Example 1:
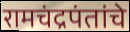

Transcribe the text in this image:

रामचंद्रपंतांचे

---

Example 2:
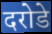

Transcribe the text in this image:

दरोडे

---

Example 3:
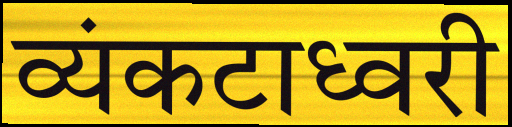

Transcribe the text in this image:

व्यंकटाध्वरी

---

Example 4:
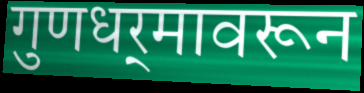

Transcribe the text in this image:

गुणधर्मावरून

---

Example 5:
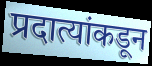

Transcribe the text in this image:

प्रदात्यांकडून